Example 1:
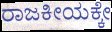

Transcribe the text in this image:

ರಾಜಕೀಯಕ್ಕೇ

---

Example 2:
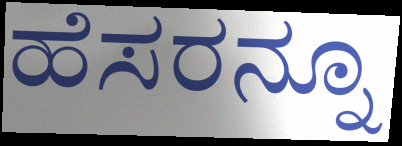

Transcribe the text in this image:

ಹೆಸರನ್ನೂ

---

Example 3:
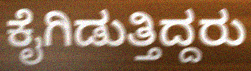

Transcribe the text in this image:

ಕೈಗಿಡುತ್ತಿದ್ದರು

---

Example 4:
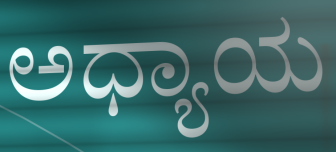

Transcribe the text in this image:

ಅಧ್ಯಾಯ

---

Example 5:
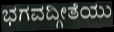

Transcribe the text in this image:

ಭಗವದ್ಗೀತೆಯು